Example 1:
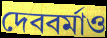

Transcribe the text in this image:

দেববর্মাও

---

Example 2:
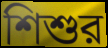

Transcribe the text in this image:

শিশুর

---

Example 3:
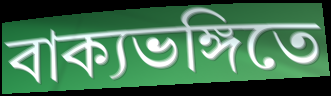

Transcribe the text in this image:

বাক্যভঙ্গিতে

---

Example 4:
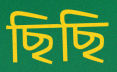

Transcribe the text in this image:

ছিছি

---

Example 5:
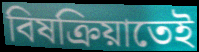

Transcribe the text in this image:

বিষক্রিয়াতেই